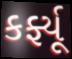
કર્ફ્યૂ